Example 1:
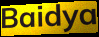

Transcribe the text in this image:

Baidya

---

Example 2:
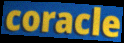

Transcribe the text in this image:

coracle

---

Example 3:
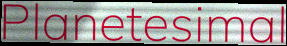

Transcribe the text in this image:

Planetesimal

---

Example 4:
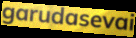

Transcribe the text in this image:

garudasevai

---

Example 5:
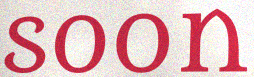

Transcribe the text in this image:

soon